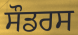
ਸੌਡਰਸ